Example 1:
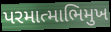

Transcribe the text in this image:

પરમાત્માભિમુખ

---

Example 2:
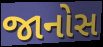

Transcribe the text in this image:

જાનોસ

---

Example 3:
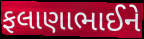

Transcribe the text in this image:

ફલાણાભાઈને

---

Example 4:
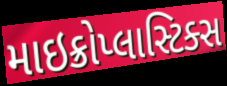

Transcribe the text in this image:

માઇક્રોપ્લાસ્ટિક્સ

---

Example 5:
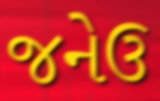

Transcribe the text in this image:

જનેઉ